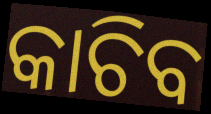
କାଚିବ